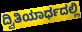
ದ್ವಿತಿಯಾರ್ಧದಲ್ಲಿ